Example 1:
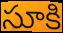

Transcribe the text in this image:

సూకి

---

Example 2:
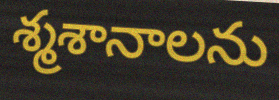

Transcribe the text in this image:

శ్మశానాలను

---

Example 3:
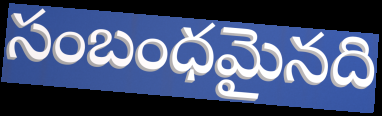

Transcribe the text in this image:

సంబంధమైనది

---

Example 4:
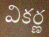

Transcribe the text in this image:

వికర్ణ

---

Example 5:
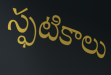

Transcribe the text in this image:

స్ఫటికాలు